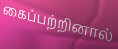
கைப்பற்றினால்